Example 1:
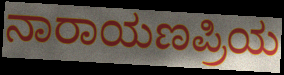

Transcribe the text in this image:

ನಾರಾಯಣಪ್ರಿಯ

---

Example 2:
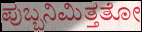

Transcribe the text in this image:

ಪುಬ್ಬನಿಮಿತ್ತತೋ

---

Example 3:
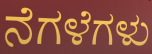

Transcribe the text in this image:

ನೆಗಳೆಗಳು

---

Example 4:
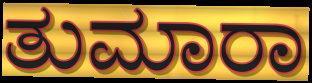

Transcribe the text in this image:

ತುಮಾರಾ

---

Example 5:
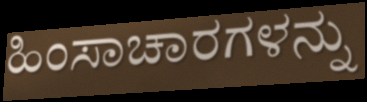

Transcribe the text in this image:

ಹಿಂಸಾಚಾರಗಳನ್ನು